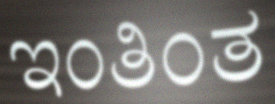
ಇಂತಿಂತ